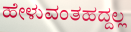
ಹೇಳುವಂತಹದ್ದಲ್ಲ